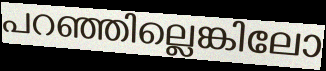
പറഞ്ഞില്ലെങ്കിലോ